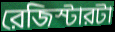
রেজিস্টারটা